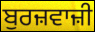
ਬੁਰਜ਼ਵਾਜ਼ੀ